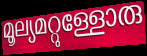
മൂല്യമറ്റുള്ളോരു